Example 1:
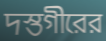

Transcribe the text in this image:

দস্তগীরের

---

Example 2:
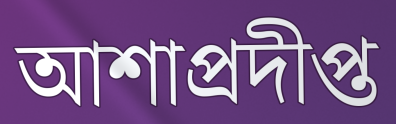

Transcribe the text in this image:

আশাপ্রদীপ্ত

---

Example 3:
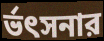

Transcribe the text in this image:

র্ভৎসনার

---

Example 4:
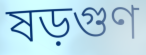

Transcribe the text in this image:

ষড়গুণ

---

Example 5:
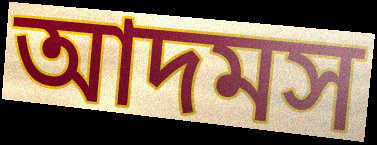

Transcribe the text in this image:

আদমস